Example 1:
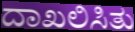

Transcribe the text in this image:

ದಾಖಲಿಸಿತು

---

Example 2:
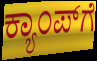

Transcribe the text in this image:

ಕ್ಯಾಂಪ್‍ಗೆ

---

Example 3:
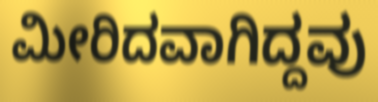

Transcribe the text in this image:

ಮೀರಿದವಾಗಿದ್ದವು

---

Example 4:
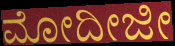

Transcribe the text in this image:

ಮೋದೀಜೀ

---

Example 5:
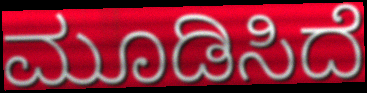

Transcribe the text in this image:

ಮೂಡಿಸಿದೆ